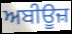
ਅਬੀਊਜ਼